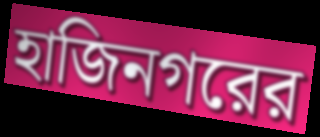
হাজিনগরের